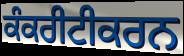
ਕੰਕਰੀਟੀਕਰਨ